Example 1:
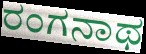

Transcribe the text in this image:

ರಂಗನಾಥ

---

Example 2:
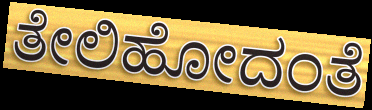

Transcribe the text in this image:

ತೇಲಿಹೋದಂತೆ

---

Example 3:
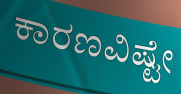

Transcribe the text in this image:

ಕಾರಣವಿಷ್ಟೇ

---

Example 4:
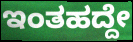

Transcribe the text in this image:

ಇಂತಹದ್ದೇ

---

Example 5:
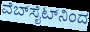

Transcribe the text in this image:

ವೆಬ್‍ಸೈಟ್‍ನಿಂದ